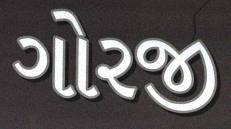
ગોરજી